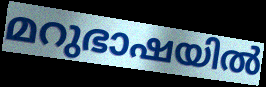
മറുഭാഷയിൽ